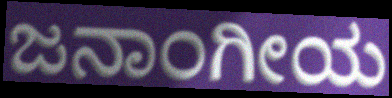
ಜನಾಂಗೀಯ